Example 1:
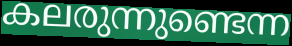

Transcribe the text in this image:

കലരുന്നുണ്ടെന്ന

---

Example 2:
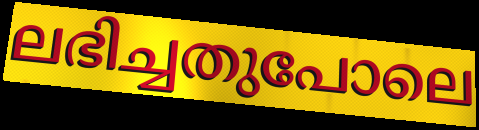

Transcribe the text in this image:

ലഭിച്ചതുപോലെ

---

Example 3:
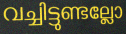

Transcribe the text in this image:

വച്ചിട്ടുണ്ടല്ലോ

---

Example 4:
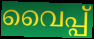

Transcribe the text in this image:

വൈപ്പ്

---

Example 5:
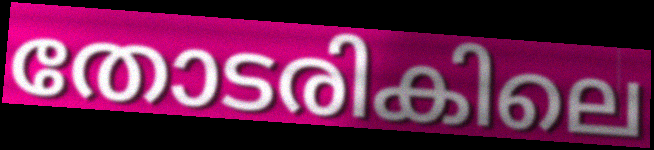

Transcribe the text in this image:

തോടരികിലെ